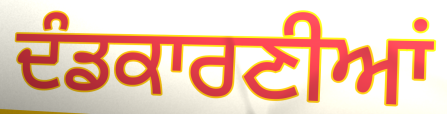
ਦੰਡਕਾਰਣੀਆਂ